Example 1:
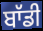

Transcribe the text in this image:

ਬਾੱਡੀ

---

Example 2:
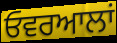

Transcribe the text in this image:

ਓਵਰਆਲਾਂ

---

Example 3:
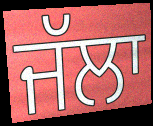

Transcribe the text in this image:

ਜੱਲਾ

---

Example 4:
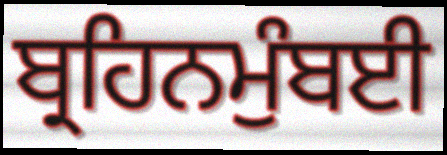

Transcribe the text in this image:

ਬ੍ਰਹਿਨਮੁੰਬਈ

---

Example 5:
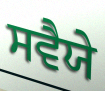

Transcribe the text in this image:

ਸਵੈਯੇ